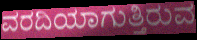
ವರದಿಯಾಗುತ್ತಿರುವ